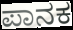
ಪಾನಕ